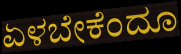
ಏಳಬೇಕೆಂದೂ